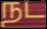
நட